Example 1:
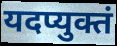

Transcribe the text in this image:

यदप्युक्तं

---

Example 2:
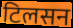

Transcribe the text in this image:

टिलसन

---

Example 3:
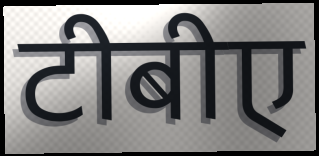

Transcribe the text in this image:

टीबीए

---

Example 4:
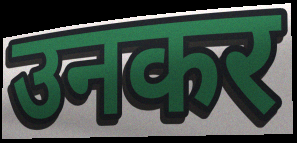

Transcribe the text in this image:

उनकर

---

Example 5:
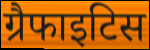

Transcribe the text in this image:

ग्रैफाइटिस